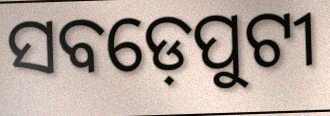
ସବଡ଼େପୁଟୀ